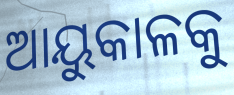
ଆୟୁକାଳକୁ